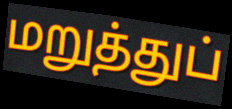
மறுத்துப்